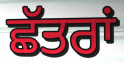
ਛੱਤਰਾਂ